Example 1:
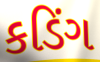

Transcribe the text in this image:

કડિંગ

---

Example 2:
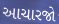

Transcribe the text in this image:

આચારજો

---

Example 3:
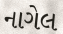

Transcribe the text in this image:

નાગેલ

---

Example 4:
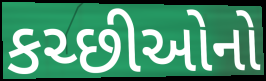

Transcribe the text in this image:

કચ્છીઓનો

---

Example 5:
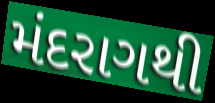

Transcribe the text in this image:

મંદરાગથી